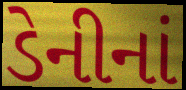
ડેનીનાં